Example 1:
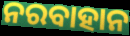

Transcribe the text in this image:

ନରବାହାନ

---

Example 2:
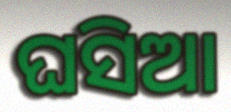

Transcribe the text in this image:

ଘସିଆ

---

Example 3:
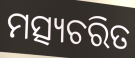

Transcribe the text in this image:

ମତ୍ସ୍ୟଚରିତ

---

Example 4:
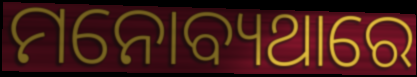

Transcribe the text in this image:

ମନୋବ୍ୟଥାରେ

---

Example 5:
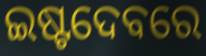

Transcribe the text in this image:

ଇଷ୍ଟଦେବରେ